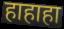
हाहाहा